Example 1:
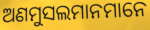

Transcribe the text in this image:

ଅଣମୁସଲମାନମାନେ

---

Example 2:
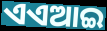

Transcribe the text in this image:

ଏଏଆଇ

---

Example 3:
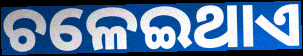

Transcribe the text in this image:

ଚଳେଇଥାଏ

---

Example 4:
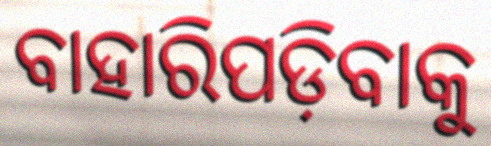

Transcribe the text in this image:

ବାହାରିପଡ଼ିବାକୁ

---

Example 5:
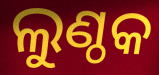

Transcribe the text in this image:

ଲୁଣ୍ଠକ